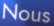
Nous